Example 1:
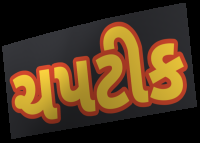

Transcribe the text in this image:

ચપટીક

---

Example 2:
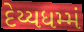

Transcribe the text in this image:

દેય્યધમ્મં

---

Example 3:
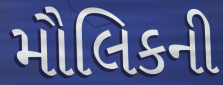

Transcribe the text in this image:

મૌલિકની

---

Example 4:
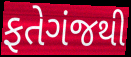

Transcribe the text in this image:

ફતેગંજથી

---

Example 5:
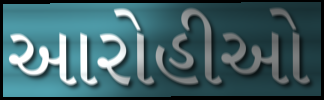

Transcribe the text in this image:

આરોહીઓ